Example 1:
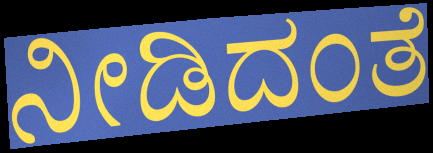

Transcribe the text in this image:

ನೀಡಿದಂತೆ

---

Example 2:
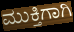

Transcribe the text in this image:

ಮುಕ್ತಿಗಾಗಿ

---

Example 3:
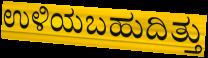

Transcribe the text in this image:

ಉಳಿಯಬಹುದಿತ್ತು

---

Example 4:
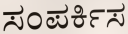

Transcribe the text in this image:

ಸಂಪರ್ಕಿಸ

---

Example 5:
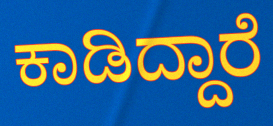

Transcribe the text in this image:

ಕಾಡಿದ್ದಾರೆ